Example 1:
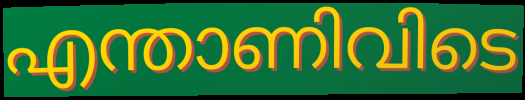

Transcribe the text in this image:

എന്താണിവിടെ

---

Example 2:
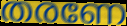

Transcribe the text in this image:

തരണേ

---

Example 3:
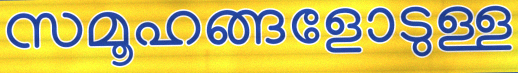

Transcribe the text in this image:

സമൂഹങ്ങളോടുള്ള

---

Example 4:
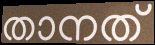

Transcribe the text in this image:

താനത്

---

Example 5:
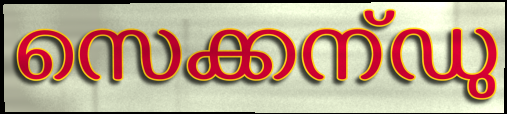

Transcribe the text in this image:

സെക്കന്ഡു